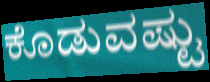
ಕೊಡುವಷ್ಟು